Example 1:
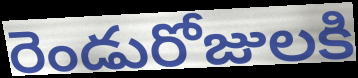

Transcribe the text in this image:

రెండురోజులకి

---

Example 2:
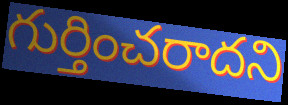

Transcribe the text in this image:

గుర్తించరాదని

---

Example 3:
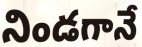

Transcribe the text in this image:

నిండగానే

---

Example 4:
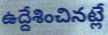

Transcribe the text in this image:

ఉద్దేశించినట్లే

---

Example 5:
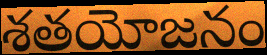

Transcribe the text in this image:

శతయోజనం